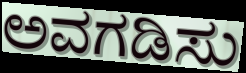
ಅವಗಡಿಸು